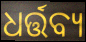
ଧର୍ତ୍ତବ୍ୟ